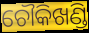
ଚୌକିଖଣ୍ଡି